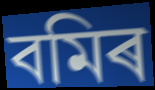
বমিৰ